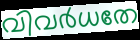
വിവർധതേ